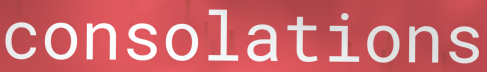
consolations